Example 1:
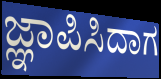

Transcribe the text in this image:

ಜ್ಞಾಪಿಸಿದಾಗ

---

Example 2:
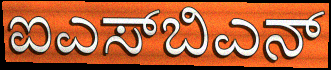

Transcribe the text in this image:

ಐಎಸ್‌ಬಿಎನ್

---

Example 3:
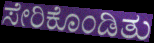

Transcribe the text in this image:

ಸೇರಿಕೊಂಡಿತು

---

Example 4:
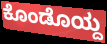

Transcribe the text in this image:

ಕೊಂಡೊಯ್ದ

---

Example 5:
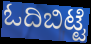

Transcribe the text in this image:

ಓದಿಬಿಟ್ಟೆ